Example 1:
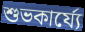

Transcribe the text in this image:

শুভকার্য্যে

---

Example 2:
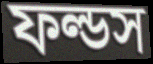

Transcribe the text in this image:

ফল্ডস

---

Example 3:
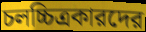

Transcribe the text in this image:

চলচ্চিত্রকারদের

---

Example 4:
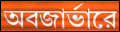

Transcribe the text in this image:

অবজার্ভারে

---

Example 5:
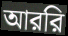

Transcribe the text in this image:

আররি